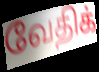
வேதிக்